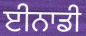
ਈਨਾਡੀ